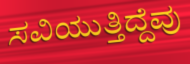
ಸವಿಯುತ್ತಿದ್ದೆವು